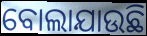
ବୋଲାଯାଉଛି